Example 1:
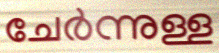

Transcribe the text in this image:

ചേർന്നുള്ള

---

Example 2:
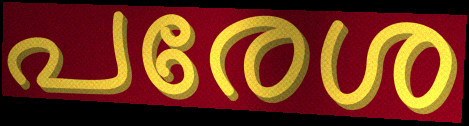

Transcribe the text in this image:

പരേശ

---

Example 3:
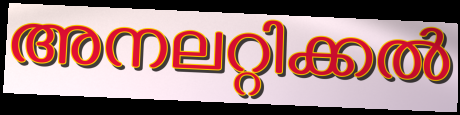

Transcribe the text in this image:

അനലറ്റിക്കൽ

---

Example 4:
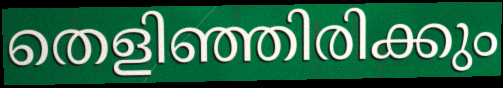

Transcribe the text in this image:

തെളിഞ്ഞിരിക്കും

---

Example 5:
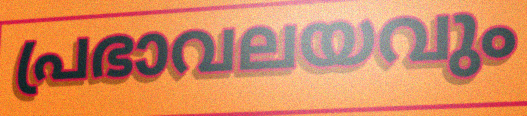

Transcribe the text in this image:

പ്രഭാവലയവും